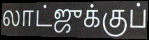
லாட்ஜுக்குப்